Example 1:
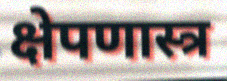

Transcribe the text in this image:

क्षेपणास्त्र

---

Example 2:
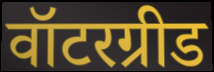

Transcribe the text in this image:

वॉटरग्रीड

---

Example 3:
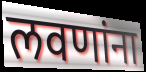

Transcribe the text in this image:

लवणांना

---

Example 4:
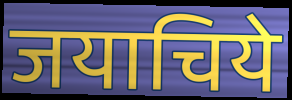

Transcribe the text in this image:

जयाचिये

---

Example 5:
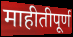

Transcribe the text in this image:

माहीतीपूर्ण